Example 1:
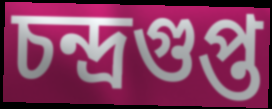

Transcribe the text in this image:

চন্দ্ৰগুপ্ত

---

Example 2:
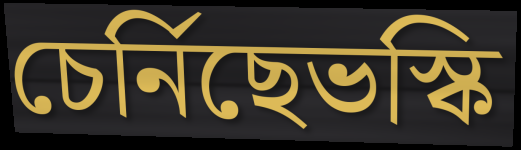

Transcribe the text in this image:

চেৰ্নিছেভস্কি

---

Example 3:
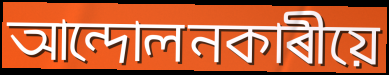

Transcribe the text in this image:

আন্দোলনকাৰীয়ে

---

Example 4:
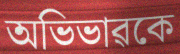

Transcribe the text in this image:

অভিভাৱকে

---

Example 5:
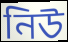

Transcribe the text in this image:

নিউ